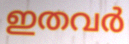
ഇതവർ